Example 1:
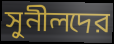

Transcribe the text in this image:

সুনীলদের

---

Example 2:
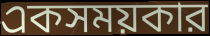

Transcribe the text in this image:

একসময়কার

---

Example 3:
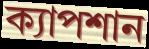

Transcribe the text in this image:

ক্যাপশান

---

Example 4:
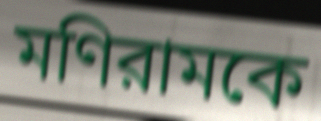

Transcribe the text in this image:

মণিরামকে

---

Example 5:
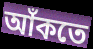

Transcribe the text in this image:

আঁকতে